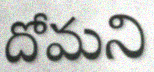
దోమని